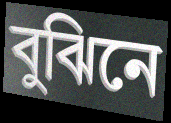
বুঝিনে